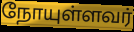
நோயுள்ளவர்